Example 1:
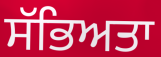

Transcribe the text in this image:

ਸੱਭਿਅਤਾ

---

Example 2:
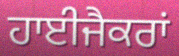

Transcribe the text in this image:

ਹਾਈਜੈਕਰਾਂ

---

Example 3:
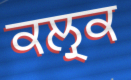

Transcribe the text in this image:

ਕਲ੍ਰਕ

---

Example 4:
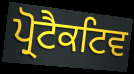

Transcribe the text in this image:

ਪ੍ਰੋਟੈਕਟਿਵ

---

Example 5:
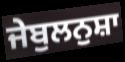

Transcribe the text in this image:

ਜੇਬੁਲਨੁਸ਼ਾ